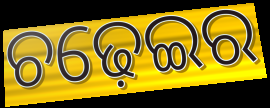
ଚଢ଼େଇର